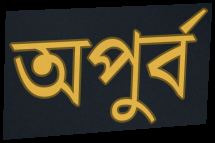
অপুর্ব